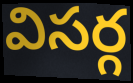
విసర్గ